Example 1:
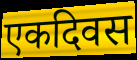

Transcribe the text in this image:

एकदिवस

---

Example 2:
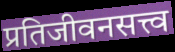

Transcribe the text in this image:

प्रतिजीवनसत्त्व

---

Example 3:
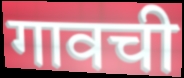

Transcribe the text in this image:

गावची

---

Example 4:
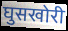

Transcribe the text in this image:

घुसखोरी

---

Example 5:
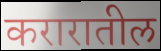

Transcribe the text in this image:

करारातील